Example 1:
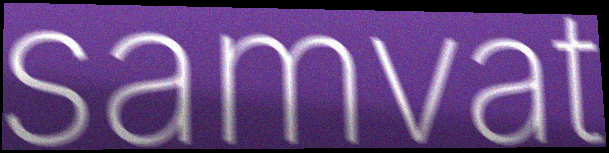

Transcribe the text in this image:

samvat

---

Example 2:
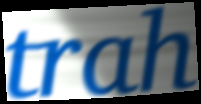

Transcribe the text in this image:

trah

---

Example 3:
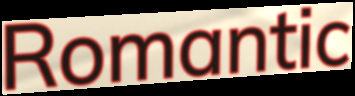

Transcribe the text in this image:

Romantic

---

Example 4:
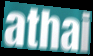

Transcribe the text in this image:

athai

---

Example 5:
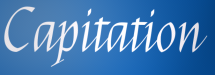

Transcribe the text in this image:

Capitation